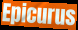
Epicurus